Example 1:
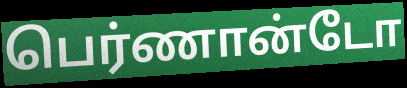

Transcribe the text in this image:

பெர்ணான்டோ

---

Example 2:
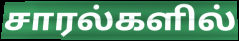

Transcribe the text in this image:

சாரல்களில்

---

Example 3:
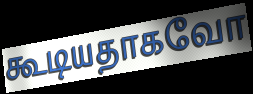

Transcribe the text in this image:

கூடியதாகவோ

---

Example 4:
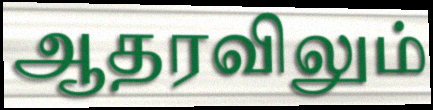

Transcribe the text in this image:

ஆதரவிலும்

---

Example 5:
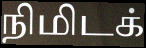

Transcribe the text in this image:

நிமிடக்